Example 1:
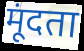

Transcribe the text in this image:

मूंदता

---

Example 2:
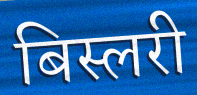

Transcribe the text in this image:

बिस्लरी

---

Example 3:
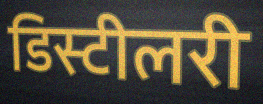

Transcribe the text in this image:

डिस्टीलरी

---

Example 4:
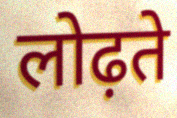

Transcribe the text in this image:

लोढ़ते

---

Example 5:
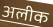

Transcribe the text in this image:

अलीक